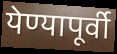
येण्यापूर्वी